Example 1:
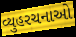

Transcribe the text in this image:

વ્યુહરચનાઓ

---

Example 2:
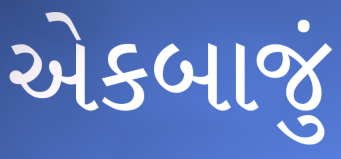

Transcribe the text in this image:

એકબાજું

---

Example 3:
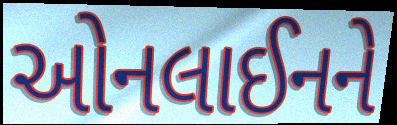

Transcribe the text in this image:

ઓનલાઈનને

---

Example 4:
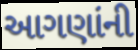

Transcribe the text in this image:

આગણાંની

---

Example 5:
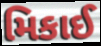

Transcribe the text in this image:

મિકાઈ